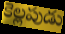
కెల్లపుడు